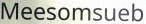
Meesomsueb